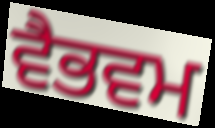
ਵੈਭਵਮ